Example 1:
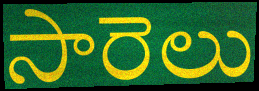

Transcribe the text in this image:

సారెలు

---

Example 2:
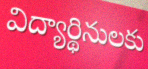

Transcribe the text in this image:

విద్యార్థినులకు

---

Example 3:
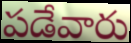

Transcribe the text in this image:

పడేవారు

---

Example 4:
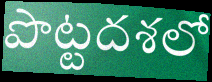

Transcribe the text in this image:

పొట్టదశలో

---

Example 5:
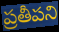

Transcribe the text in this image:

ప్రతీపని